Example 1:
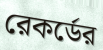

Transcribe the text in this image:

রেকর্ডের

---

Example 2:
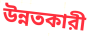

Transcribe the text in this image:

উন্নতকারী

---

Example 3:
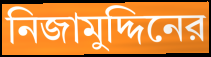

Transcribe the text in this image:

নিজামুদ্দিনের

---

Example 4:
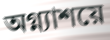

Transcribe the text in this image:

অগ্ন্যাশয়ে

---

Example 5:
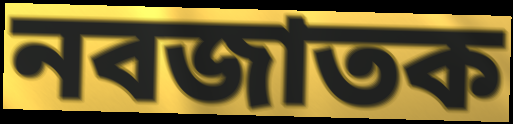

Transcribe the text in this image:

নবজাতক